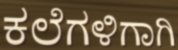
ಕಲೆಗಳಿಗಾಗಿ